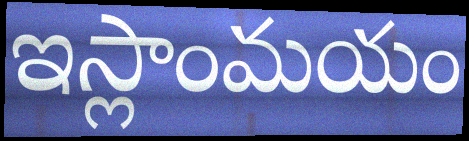
ఇస్లాంమయం